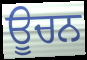
ਊਚਨ